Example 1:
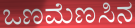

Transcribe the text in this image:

ಒಣಮೆಣಸಿನ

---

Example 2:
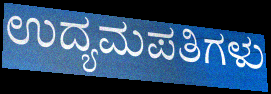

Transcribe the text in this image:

ಉದ್ಯಮಪತಿಗಳು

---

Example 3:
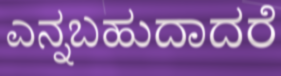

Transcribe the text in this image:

ಎನ್ನಬಹುದಾದರೆ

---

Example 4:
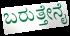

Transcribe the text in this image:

ಬರುತ್ತೇನೈ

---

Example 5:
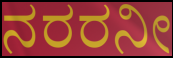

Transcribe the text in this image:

ನರರನೀ